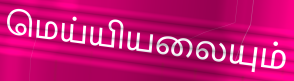
மெய்யியலையும்